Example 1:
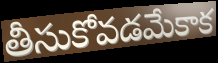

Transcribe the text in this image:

తీసుకోవడమేకాక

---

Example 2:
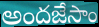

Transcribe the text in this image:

అందజేసాం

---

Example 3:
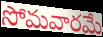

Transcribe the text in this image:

సోమవారమే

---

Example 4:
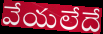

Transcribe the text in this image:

వేయలేదే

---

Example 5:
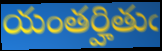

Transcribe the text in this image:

యంతర్హితుఁ